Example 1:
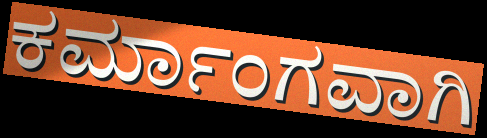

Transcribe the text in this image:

ಕರ್ಮಾಂಗವಾಗಿ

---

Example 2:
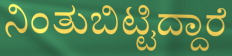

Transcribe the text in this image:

ನಿಂತುಬಿಟ್ಟಿದ್ದಾರೆ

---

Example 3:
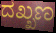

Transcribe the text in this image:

ದಖ್ಖಣ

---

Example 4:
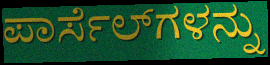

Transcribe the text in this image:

ಪಾರ್ಸೆಲ್‌ಗಳನ್ನು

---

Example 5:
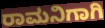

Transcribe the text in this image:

ರಾಮನಿಗಾಗಿ